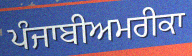
ਪੰਜਾਬੀਅਮਰੀਕਾ